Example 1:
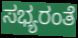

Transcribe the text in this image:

ಸಭ್ಯರಂತೆ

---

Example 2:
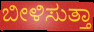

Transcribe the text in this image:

ಬೀಳಿಸುತ್ತಾ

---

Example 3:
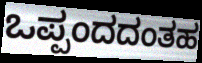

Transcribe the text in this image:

ಒಪ್ಪಂದದಂತಹ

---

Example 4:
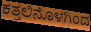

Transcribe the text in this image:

ಕತ್ತಲಿನೊಳಗಿಂದ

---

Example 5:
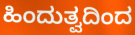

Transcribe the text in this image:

ಹಿಂದುತ್ವದಿಂದ